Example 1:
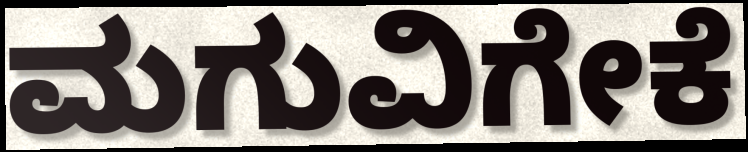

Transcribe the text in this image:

ಮಗುವಿಗೇಕೆ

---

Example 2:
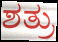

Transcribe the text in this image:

ಶತ್ರು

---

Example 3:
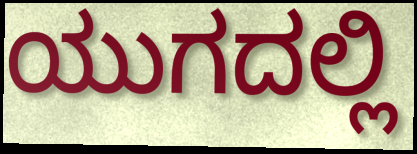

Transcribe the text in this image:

ಯುಗದಲ್ಲಿ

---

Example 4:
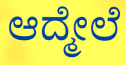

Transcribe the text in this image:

ಆದ್ಮೇಲೆ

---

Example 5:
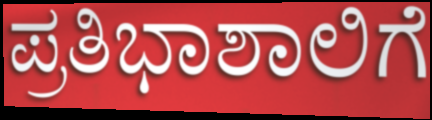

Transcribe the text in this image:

ಪ್ರತಿಭಾಶಾಲಿಗೆ